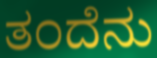
ತಂದೆನು